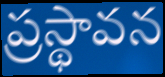
ప్రస్థావన